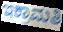
ಇಕ್ರಾಮತಿ